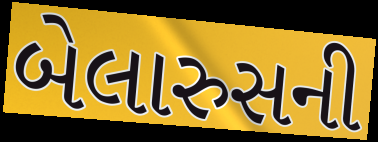
બેલારુસની